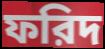
ফরিদ